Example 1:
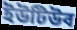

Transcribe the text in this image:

ইউটিউব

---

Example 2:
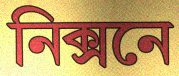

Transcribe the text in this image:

নিক্সনে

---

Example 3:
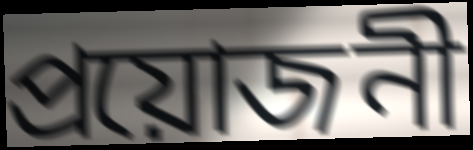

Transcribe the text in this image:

প্ৰয়োজনী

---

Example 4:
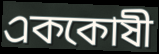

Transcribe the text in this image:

এককোষী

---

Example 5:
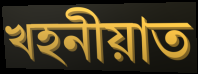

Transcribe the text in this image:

খহনীয়াত